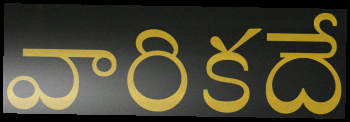
వారికదే